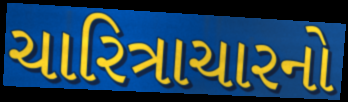
ચારિત્રાચારનો